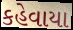
કહેવાયા